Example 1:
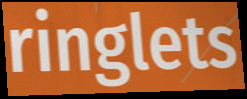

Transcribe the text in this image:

ringlets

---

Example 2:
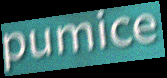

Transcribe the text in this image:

pumice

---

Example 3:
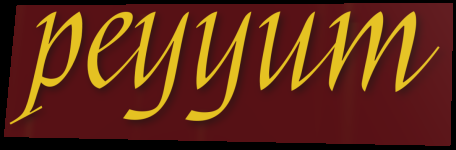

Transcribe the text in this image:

peyyum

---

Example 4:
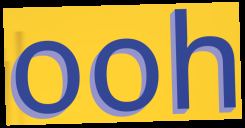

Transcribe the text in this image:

ooh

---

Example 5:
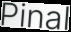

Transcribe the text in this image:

Pinal